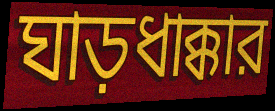
ঘাড়ধাক্কার